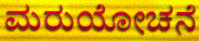
ಮರುಯೋಚನೆ